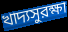
খাদ্যসুরক্ষা